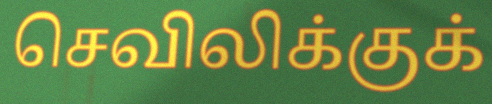
செவிலிக்குக்